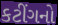
કટીંગનો